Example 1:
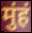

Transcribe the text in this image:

मुंहं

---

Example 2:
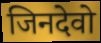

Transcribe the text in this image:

जिनदेवो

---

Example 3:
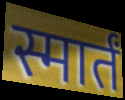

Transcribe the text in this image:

स्मार्तं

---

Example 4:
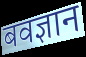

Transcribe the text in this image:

बवज्ञान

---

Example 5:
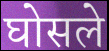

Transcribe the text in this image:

घोसले